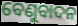
ବେଣୁବାଦନ